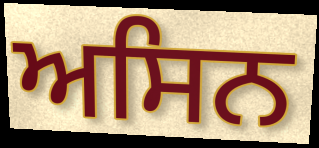
ਅਸਿਨ